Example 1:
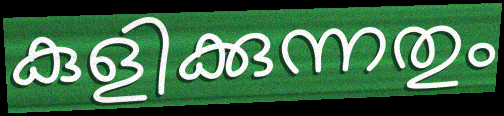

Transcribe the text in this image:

കുളിക്കുന്നതും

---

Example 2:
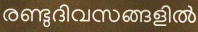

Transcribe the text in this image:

രണ്ടുദിവസങ്ങളിൽ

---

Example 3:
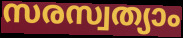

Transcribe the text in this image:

സരസ്വത്യാം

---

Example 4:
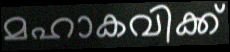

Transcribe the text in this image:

മഹാകവിക്ക്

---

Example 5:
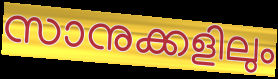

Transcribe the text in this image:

സാനുക്കളിലും